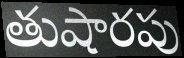
తుషారపు